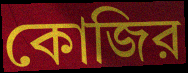
কোজির